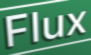
Flux